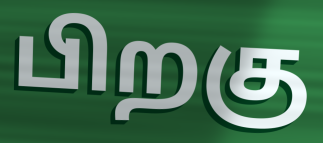
பிறகு